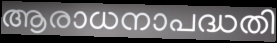
ആരാധനാപദ്ധതി